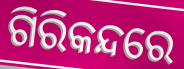
ଗିରିକନ୍ଦରେ